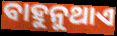
ବାହୁନୁଥାଏ